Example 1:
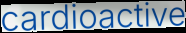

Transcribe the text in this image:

cardioactive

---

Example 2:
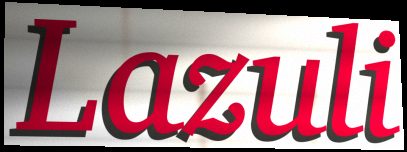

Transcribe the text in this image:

Lazuli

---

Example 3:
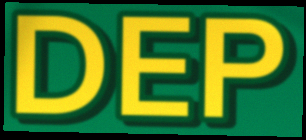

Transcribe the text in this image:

DEP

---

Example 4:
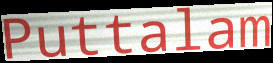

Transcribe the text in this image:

Puttalam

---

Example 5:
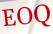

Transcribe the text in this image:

EOQ